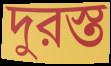
দুরস্ত